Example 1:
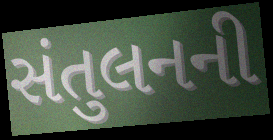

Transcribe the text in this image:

સંતુલનની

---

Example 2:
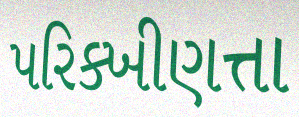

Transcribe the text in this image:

પરિક્ખીણત્તા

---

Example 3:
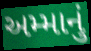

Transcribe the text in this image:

અમ્માનું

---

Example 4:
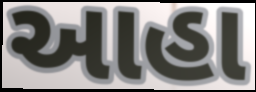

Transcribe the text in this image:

આહા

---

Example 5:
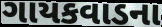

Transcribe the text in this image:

ગાયકવાડના